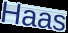
Haas